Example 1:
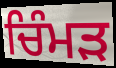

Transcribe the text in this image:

ਚਿੰਮੜ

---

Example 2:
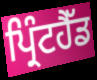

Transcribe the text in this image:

ਪ੍ਰਿੰਟਹੈੱਡ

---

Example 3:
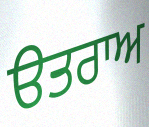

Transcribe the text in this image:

ੳਤਰਾਅ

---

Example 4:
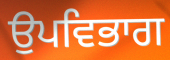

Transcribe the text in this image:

ਉਪਵਿਭਾਗ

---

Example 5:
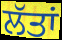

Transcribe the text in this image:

ਲੱਤਾਂ